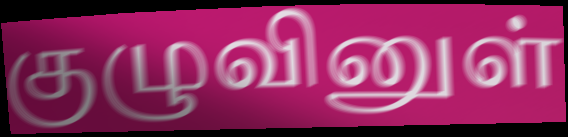
குழுவினுள்